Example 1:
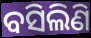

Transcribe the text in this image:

ବସିଲିଣି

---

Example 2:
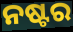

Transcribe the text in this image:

ନଷ୍ଟର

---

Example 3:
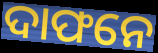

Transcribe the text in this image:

ଦାଫନେ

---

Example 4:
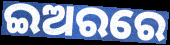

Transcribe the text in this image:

ଇଅରରେ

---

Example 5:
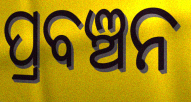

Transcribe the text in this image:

ପ୍ରବଞ୍ଚନ